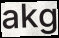
akg